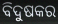
ବିଦୁଷକର